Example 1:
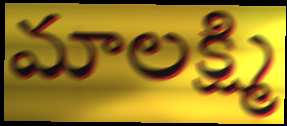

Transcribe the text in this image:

మాలక్ష్మి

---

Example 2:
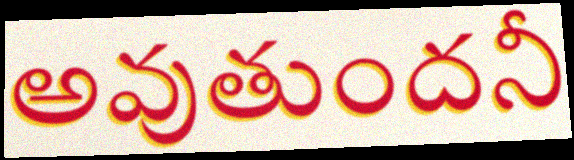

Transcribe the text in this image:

అవుతుందనీ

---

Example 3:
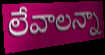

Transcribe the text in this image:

లేవాలన్నా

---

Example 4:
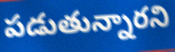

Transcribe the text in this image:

పడుతున్నారని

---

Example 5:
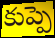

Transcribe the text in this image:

కుప్పె